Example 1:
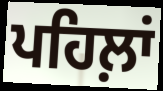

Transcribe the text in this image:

ਪਹਿਲ਼ਾਂ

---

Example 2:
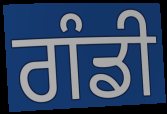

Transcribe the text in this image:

ਗੰਡੀ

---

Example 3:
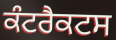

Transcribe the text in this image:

ਕੰਟਰੈਕਟਸ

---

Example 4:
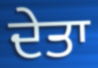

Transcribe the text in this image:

ਦੇਤਾ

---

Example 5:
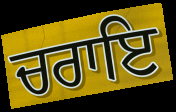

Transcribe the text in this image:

ਚਰਾਇ